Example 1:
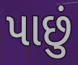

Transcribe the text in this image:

પાછું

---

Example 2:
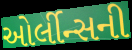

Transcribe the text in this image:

ઓર્લીન્સની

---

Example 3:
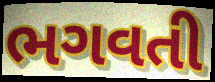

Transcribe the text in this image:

ભગવતી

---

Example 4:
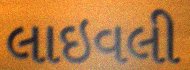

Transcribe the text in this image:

લાઇવલી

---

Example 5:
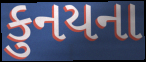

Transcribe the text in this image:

કુનયના